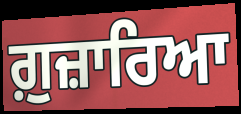
ਗ਼ੁਜ਼ਾਰਿਆ